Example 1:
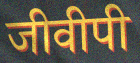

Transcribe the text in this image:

जीवीपी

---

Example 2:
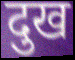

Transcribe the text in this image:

दुख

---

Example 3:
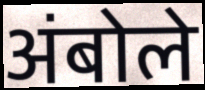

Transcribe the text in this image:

अंबोले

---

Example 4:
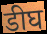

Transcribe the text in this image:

डीघ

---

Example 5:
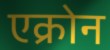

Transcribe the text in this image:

एक्रोन